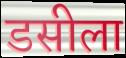
डसीला